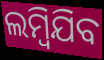
ଲମ୍ୱିଯିବ